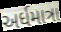
અર્ધમાત્રા